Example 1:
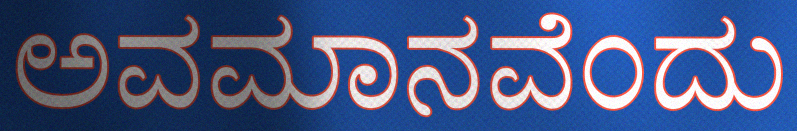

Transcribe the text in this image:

ಅವಮಾನವೆಂದು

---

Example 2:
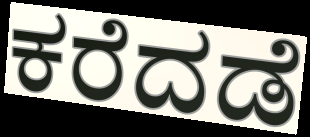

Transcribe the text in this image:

ಕರೆದಡೆ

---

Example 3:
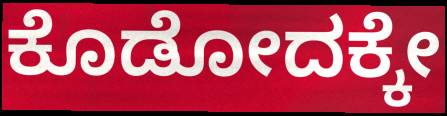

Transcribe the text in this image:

ಕೊಡೋದಕ್ಕೇ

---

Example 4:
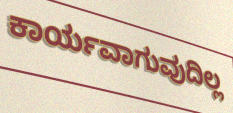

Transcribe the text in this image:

ಕಾರ್ಯವಾಗುವುದಿಲ್ಲ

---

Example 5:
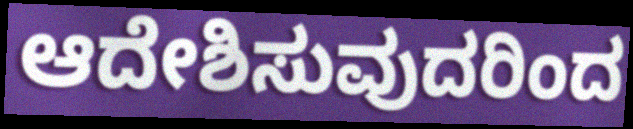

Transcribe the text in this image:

ಆದೇಶಿಸುವುದರಿಂದ